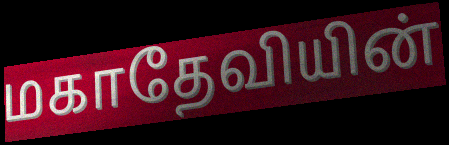
மகாதேவியின்